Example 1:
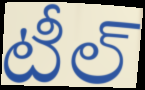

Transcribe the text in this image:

టీల్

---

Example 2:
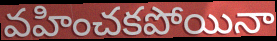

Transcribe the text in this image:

వహించకపోయినా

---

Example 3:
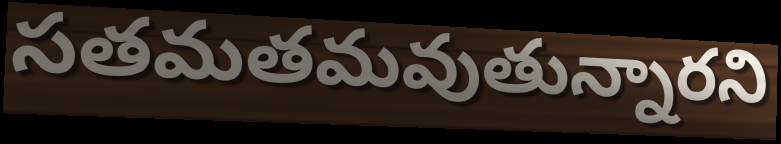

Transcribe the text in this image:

సతమతమవుతున్నారని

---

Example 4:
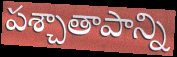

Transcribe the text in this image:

పశ్చాతాపాన్ని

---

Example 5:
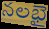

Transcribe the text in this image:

నలభై